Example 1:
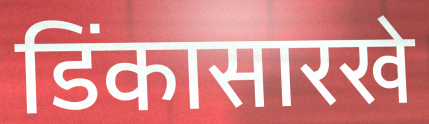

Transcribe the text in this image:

डिंकासारखे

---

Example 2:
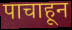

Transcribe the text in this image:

पाचाहून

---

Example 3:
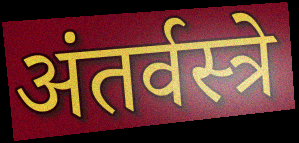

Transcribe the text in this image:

अंतर्वस्त्रे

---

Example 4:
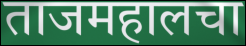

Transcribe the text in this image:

ताजमहालचा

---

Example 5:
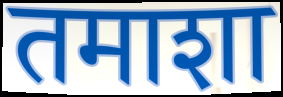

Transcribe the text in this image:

तमाशा